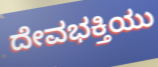
ದೇವಭಕ್ತಿಯು